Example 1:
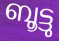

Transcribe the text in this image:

ബൂട്ടു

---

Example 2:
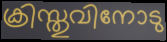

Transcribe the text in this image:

ക്രിസ്തുവിനോടു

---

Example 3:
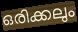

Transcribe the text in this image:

ഒരിക്കലും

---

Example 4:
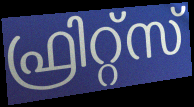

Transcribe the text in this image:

ഫ്രിറ്റ്സ്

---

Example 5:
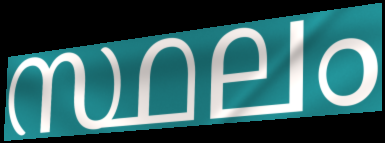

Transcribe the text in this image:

സ്ഥലം